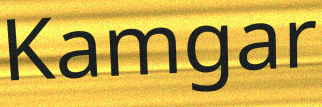
Kamgar